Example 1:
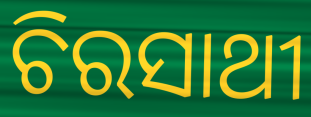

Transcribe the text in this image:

ଚିରସାଥୀ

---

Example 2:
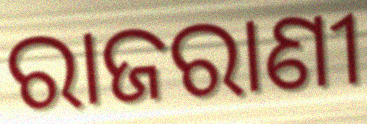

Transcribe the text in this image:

ରାଜରାଣୀ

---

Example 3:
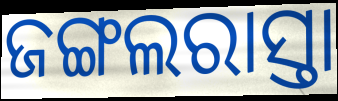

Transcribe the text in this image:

ଜଙ୍ଗଲରାସ୍ତା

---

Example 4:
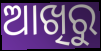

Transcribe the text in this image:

ଆଖିରୁ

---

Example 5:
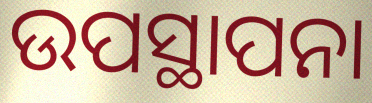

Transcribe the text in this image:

ଉପସ୍ଥାପନା